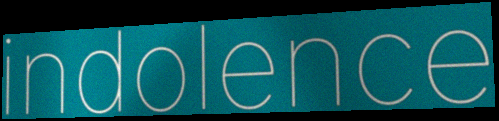
indolence